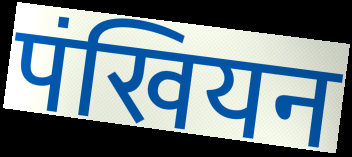
पंखियन